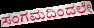
ಸಂಗಮದಿಂದಲೇ